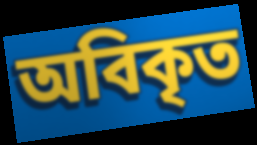
অবিকৃত